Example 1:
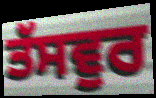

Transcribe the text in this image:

ਤੱਸਵੁਰ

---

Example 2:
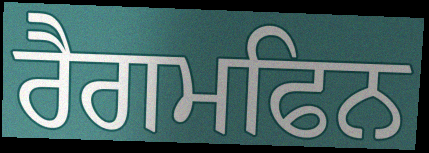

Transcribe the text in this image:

ਰੈਗਮਫਿਨ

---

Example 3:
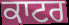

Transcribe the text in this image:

ਕਾਟਰ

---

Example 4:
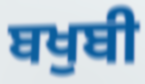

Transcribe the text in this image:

ਬਖੁਬੀ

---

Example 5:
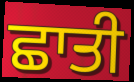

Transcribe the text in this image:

ਛਾਤੀ